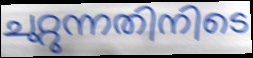
ചുറ്റുന്നതിനിടെ